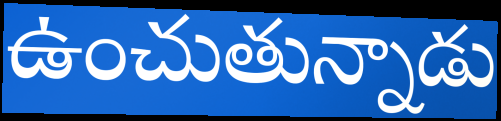
ఉంచుతున్నాడు